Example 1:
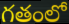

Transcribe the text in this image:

గతంలో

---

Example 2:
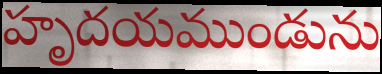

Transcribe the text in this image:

హృదయముండును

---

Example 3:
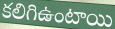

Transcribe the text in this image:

కలిగిఉంటాయి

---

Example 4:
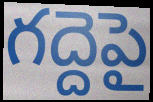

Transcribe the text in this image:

గద్దెపై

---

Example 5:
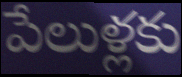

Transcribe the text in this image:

పేలుళ్లకు